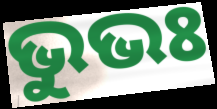
ଭୁଭଃ